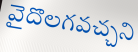
వైదొలగవచ్చని